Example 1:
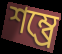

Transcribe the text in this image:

শম্ব্রে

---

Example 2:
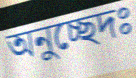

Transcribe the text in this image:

অনুচ্ছেদঃ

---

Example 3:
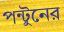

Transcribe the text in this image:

পন্টুনের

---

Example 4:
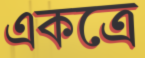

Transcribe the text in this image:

একত্রে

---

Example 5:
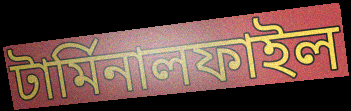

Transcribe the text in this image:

টার্মিনালফাইল